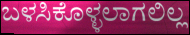
ಬಳಸಿಕೊಳ್ಳಲಾಗಲಿಲ್ಲ